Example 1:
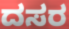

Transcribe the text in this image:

ದಸರ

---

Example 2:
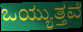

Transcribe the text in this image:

ಒಯ್ಯುತ್ತವೆ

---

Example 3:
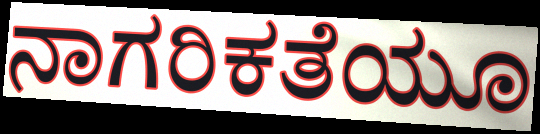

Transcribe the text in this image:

ನಾಗರಿಕತೆಯೂ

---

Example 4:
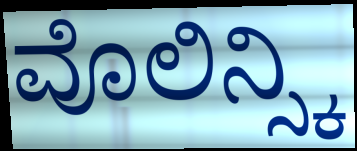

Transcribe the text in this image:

ವೊಲಿನ್ಸ್ಕಿ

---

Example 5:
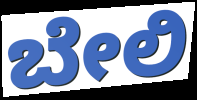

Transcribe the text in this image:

ಬೇಲಿ